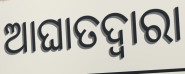
ଆଘାତଦ୍ୱାରା